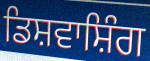
ਡਿਸ਼ਵਾਸ਼ਿੰਗ